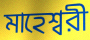
মাহেশ্বরী